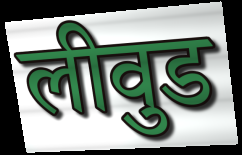
लीवुड